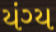
યંગ્ય